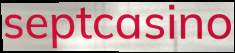
septcasino